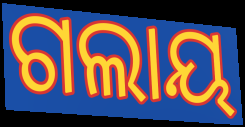
ଗଲାୟ